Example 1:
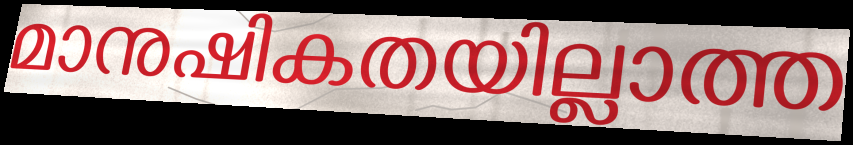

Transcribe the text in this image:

മാനുഷികതയില്ലാത്ത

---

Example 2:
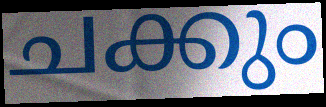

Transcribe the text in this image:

ചക്കും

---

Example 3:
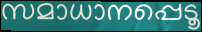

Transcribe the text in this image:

സമാധാനപ്പെടൂ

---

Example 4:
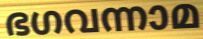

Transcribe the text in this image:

ഭഗവന്നാമ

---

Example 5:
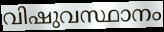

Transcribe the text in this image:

വിഷുവസ്ഥാനം